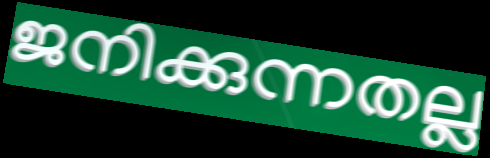
ജനിക്കുന്നതല്ല